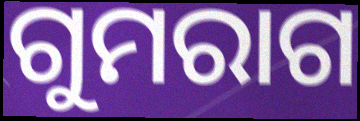
ଗୁମରାଗ